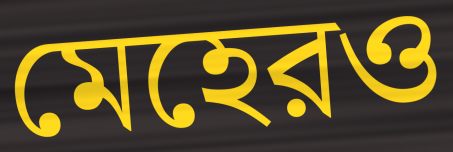
মেহেরও